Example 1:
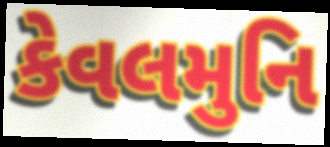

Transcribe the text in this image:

કેવલમુનિ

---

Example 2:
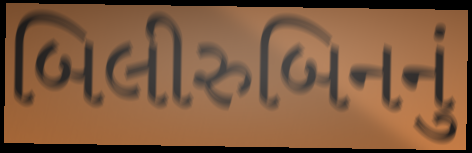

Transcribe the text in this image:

બિલીરુબિનનું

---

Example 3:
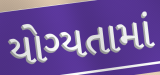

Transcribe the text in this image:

યોગ્યતામાં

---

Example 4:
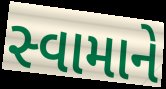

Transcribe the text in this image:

સ્વામાને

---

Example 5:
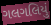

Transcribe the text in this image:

ગલગલિયું